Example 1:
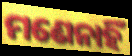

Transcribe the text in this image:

ମଣେନାହିଁ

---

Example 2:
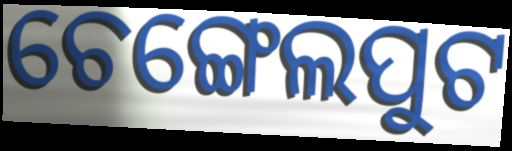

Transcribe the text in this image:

ଚେଙ୍ଗେଲପୁଟ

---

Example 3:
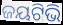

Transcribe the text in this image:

ଜୟଟିଭି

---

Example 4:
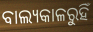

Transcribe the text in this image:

ବାଲ୍ୟକାଳରୁହିଁ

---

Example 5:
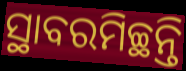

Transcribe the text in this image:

ସ୍ଥାବରମିଚ୍ଛନ୍ତି